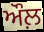
ਔਲ਼